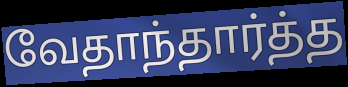
வேதாந்தார்த்த